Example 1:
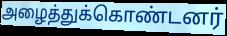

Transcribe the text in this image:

அழைத்துக்கொண்டனர்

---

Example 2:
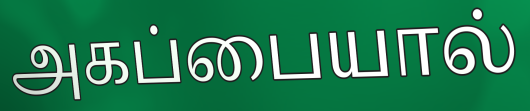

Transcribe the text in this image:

அகப்பையால்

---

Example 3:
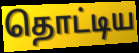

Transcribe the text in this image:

தொட்டிய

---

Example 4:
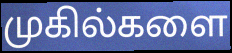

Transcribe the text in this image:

முகில்களை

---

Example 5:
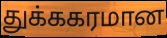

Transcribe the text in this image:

துக்ககரமான